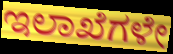
ಇಲಾಖೆಗಳೇ